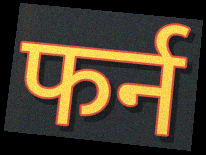
फर्न